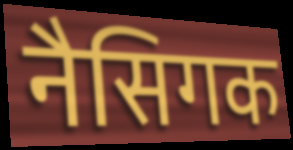
नैसिगक